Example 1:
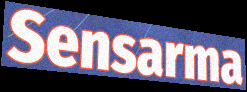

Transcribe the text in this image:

Sensarma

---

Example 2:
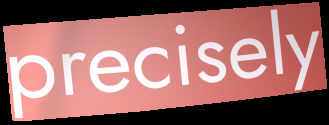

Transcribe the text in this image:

precisely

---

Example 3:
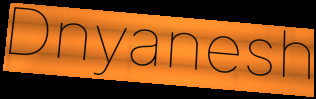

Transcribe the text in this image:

Dnyanesh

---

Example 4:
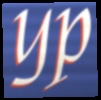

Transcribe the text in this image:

yp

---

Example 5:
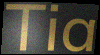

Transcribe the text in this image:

Tia